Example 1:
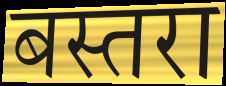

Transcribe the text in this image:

बस्तरा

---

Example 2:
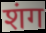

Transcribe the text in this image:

शंग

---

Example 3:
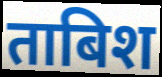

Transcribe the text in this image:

ताबिश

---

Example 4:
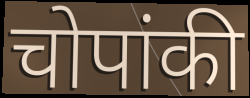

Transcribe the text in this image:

चोपांकी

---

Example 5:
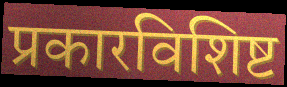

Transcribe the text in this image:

प्रकारविशिष्ट